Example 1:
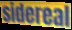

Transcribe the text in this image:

sidereal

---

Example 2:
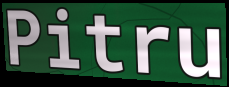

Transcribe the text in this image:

Pitru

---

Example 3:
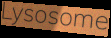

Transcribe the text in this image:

Lysosome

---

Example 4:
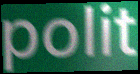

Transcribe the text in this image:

polit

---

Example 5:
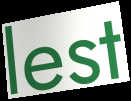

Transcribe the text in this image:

lest